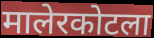
मालेरकोटला